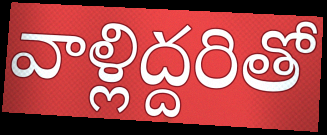
వాళ్లిద్దరితో